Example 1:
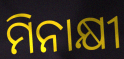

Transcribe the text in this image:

ମିନାକ୍ଷୀ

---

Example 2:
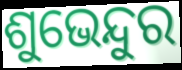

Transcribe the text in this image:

ଶୁଭେନ୍ଦୁର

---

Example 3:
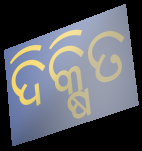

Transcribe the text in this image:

ଦିକ୍ଷିତ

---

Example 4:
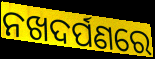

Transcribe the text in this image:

ନଖଦର୍ପଣରେ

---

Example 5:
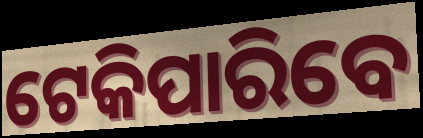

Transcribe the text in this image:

ଟେକିପାରିବେ